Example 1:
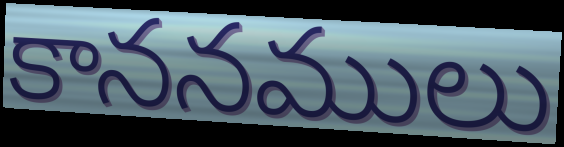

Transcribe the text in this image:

కాననములు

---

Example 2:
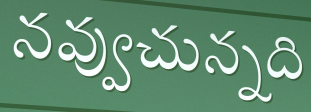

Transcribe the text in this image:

నవ్వుచున్నది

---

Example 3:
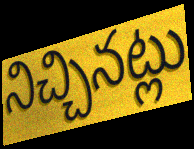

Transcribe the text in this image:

నిచ్చినట్లు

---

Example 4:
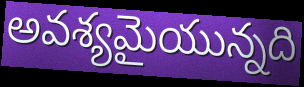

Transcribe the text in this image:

అవశ్యమైయున్నది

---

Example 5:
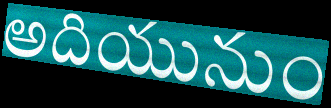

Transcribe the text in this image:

అదియునుం